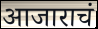
आजाराचं